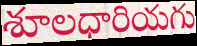
శూలధారియగు